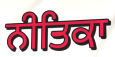
ਨੀਤਿਕਾ